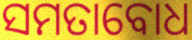
ସମତାବୋଧ